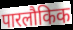
पारलौकिक